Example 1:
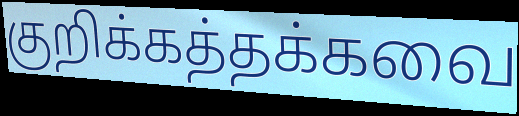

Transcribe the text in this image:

குறிக்கத்தக்கவை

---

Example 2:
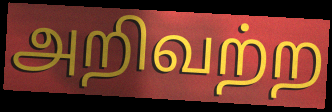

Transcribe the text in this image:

அறிவற்ற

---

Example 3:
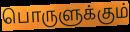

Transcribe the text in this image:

பொருளுக்கும்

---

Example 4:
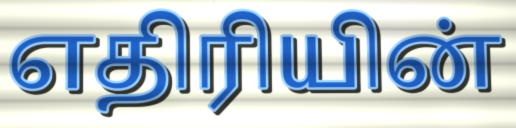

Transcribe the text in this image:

எதிரியின்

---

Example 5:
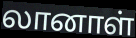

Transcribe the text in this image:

லானாள்